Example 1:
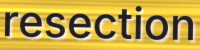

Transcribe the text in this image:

resection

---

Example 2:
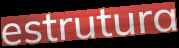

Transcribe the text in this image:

estrutura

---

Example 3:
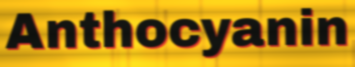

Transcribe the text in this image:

Anthocyanin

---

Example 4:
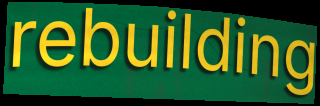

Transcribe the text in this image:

rebuilding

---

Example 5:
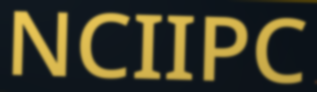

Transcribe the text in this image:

NCIIPC